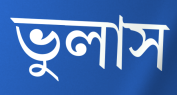
ভুলাস